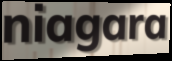
niagara